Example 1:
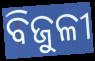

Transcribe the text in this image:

ବିଜୁଳୀ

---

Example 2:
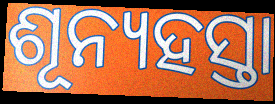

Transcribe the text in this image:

ଶୂନ୍ୟହସ୍ତା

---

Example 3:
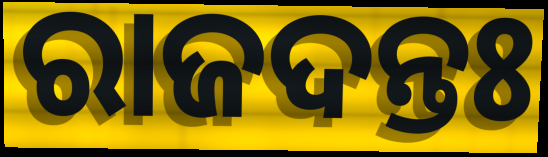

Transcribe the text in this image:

ରାଜଦନ୍ତଃ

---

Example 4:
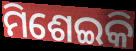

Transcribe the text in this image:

ମିଶେଇକି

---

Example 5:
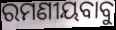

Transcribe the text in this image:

ରମଣୀୟବାବୁ